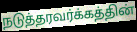
நடுத்தரவர்க்கத்தின்